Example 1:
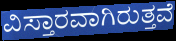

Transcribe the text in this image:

ವಿಸ್ತಾರವಾಗಿರುತ್ತವೆ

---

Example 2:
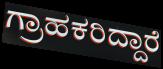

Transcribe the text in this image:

ಗ್ರಾಹಕರಿದ್ದಾರೆ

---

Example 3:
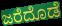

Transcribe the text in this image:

ಜರೆದೊಡೆ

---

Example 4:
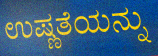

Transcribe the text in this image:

ಉಷ್ಣತೆಯನ್ನು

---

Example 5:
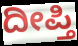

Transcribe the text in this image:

ದೀಪ್ತಿ